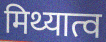
मिथ्‍यात्‍व